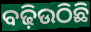
ବଢ଼ିଉଠିଛି